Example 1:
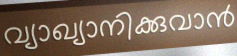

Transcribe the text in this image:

വ്യാഖ്യാനിക്കുവാൻ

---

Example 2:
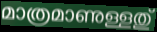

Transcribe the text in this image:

മാത്രമാണുള്ളതു്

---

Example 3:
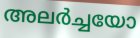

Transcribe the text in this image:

അലർച്ചയോ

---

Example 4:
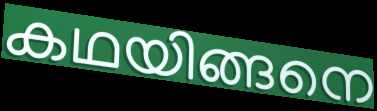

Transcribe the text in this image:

കഥയിങ്ങനെ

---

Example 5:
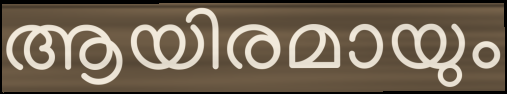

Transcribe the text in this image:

ആയിരമായും